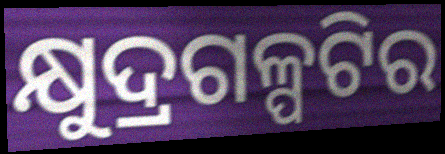
କ୍ଷୁଦ୍ରଗଳ୍ପଟିର